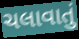
ચલાવાતું